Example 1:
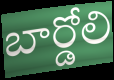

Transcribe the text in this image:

బార్డోలి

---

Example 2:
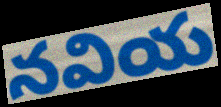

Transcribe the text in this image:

నవియ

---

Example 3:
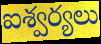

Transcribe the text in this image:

ఐశ్వర్యలు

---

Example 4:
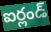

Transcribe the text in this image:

ఐర్లండ్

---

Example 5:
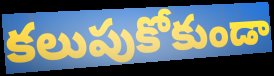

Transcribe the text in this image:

కలుపుకోకుండా